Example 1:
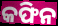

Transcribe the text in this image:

କଫିନ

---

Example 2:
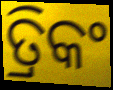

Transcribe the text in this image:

ତ୍ରିକଂ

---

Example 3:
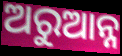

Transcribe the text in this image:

ଅରୁଆନ୍ନ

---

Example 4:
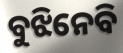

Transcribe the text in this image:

ବୁଝିନେବି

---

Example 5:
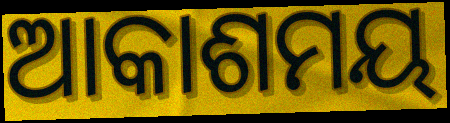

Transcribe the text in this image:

ଆକାଶମୟ